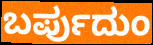
ಬರ್ಪುದುಂ